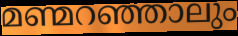
മണ്മറഞ്ഞാലും